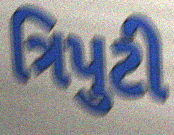
ત્રિપુટી